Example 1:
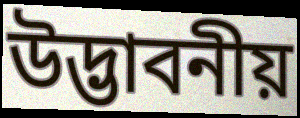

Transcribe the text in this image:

উদ্ভাবনীয়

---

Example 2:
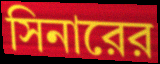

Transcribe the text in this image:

সিনারের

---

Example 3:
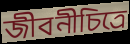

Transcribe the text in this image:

জীবনীচিত্রে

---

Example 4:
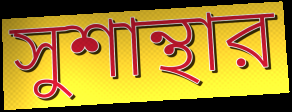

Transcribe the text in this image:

সুশান্থার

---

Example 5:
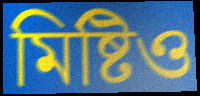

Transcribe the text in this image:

মিষ্টিও